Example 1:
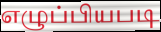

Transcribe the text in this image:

எழுப்பியபடி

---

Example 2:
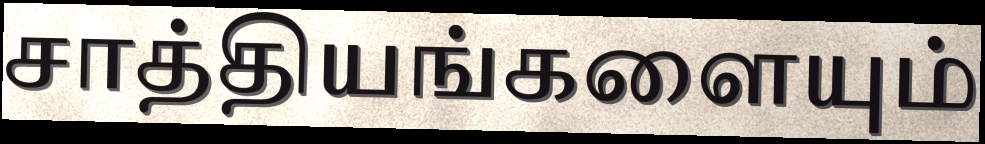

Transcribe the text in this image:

சாத்தியங்களையும்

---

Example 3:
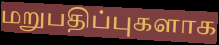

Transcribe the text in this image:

மறுபதிப்புகளாக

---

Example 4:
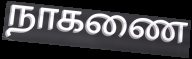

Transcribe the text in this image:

நாகணை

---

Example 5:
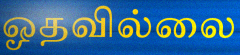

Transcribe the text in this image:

ஓதவில்லை